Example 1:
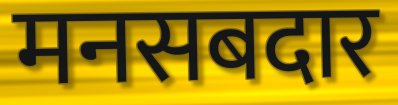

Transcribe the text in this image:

मनसबदार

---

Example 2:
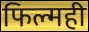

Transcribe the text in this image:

फिल्मही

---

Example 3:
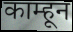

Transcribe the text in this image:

काम्हून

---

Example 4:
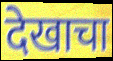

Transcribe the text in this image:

देखाचा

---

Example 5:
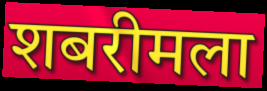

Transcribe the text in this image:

शबरीमला